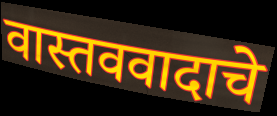
वास्तववादाचे